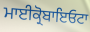
ਮਾਈਕ੍ਰੋਬਾਇਓਟਾ